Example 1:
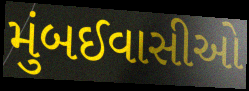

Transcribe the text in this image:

મુંબઈવાસીઓ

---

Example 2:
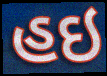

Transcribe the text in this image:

હઇ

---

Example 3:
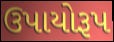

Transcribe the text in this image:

ઉપાયોરૂપ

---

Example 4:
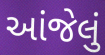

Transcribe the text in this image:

આંજેલું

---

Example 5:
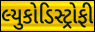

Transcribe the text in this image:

લ્યુકોડિસ્ટ્રોફી